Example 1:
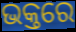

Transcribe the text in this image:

ଭକ୍ତରେ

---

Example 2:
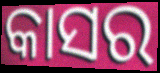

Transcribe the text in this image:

କାସର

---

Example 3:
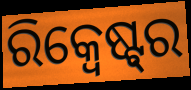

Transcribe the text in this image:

ରିକ୍ୱେଷ୍ଟ୍‌ର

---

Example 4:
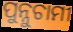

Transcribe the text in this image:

ପୁନ୍ନୁଚାମୀ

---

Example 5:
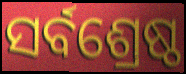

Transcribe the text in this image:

ସର୍ବଶ୍ରେଷ୍ଠ